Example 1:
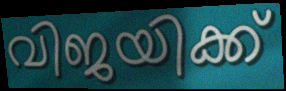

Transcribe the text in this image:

വിജയിക്ക്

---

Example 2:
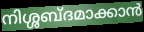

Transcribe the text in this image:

നിശ്ശബ്ദമാക്കാൻ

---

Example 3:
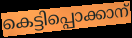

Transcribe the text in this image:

കെട്ടിപ്പൊക്കാന്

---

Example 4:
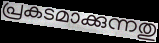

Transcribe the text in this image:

പ്രകടമാക്കുന്നതു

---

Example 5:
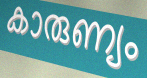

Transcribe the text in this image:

കാരുണ്യം